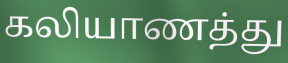
கலியாணத்து